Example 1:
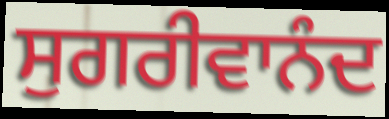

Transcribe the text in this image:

ਸੁਗਰੀਵਾਨੰਦ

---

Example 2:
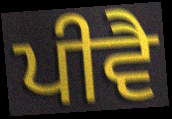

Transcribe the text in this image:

ਪੀਵੈ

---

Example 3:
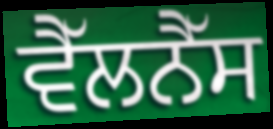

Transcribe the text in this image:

ਵੈੱਲਨੈੱਸ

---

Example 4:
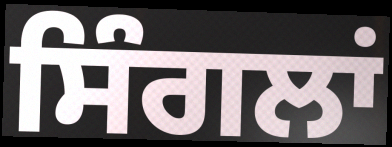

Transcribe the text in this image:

ਸਿੰਗਲਾਂ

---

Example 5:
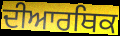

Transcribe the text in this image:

ਦੀਆਰਥਿਕ